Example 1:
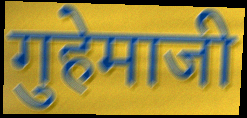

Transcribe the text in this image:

गुहेमाजी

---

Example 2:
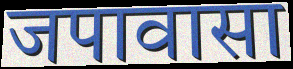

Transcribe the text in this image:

जपावासा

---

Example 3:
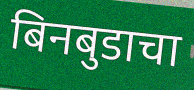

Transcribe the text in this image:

बिनबुडाचा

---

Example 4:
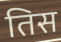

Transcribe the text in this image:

तिस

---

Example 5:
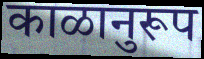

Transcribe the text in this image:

काळानुरूप